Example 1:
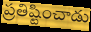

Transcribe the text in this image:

ప్రతిష్టించాడు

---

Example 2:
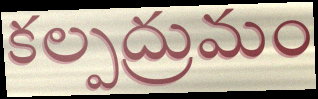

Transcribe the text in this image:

కల్పద్రుమం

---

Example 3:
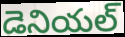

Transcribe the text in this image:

డెనియల్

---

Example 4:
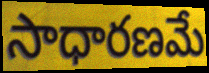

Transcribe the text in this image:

సాధారణమే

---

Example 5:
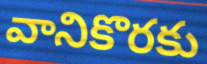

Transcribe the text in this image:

వానికొరకు